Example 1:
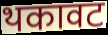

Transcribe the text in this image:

थकावट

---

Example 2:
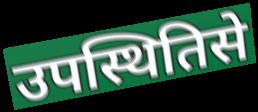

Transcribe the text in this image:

उपस्थितिसे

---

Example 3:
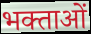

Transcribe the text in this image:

भक्ताओं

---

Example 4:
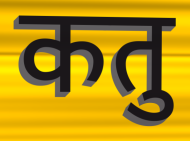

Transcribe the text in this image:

कतु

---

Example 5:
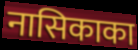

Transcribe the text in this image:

नासिकाका